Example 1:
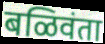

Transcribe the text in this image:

बळिवंता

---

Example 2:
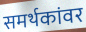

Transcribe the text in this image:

समर्थकांवर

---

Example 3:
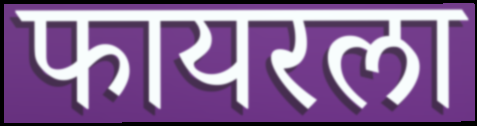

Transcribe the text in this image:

फायरला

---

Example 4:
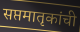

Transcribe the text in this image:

सप्तमातृकांची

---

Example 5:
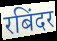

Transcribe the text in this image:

रबिंदर